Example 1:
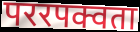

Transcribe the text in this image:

पररपक्वता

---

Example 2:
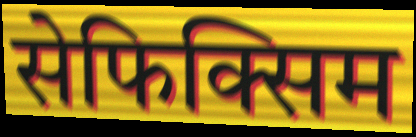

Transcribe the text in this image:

सेफिक्सिम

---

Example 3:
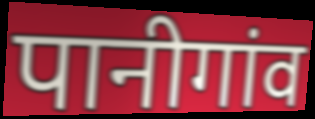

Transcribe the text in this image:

पानीगांव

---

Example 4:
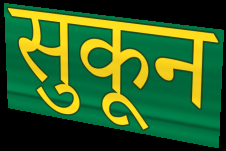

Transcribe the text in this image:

सुकून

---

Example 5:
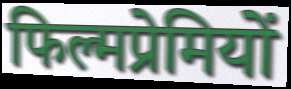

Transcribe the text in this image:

फिल्मप्रेमियों